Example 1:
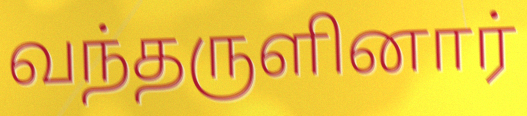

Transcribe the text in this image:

வந்தருளினார்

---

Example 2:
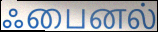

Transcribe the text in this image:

ஃபைனல்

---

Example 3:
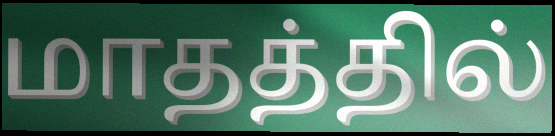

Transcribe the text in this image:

மாதத்தில்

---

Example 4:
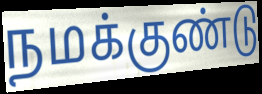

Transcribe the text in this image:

நமக்குண்டு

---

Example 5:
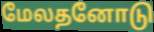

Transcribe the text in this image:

மேலதனோடு